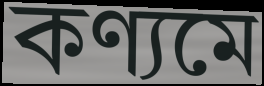
কণ্যমে